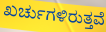
ಖರ್ಚುಗಳಿರುತ್ತವೆ